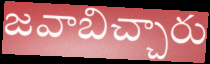
జవాబిచ్చారు